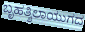
ಬೃಹತ್ಶಿಲಾಯುಗದ